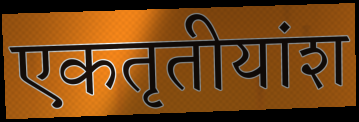
एकतृतीयांश